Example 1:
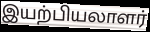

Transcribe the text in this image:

இயற்பியலாளர்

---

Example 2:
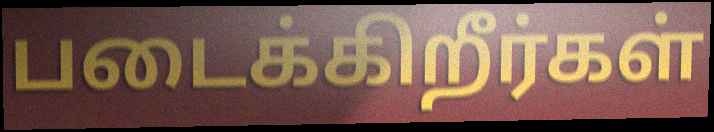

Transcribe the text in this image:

படைக்கிறீர்கள்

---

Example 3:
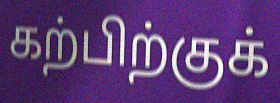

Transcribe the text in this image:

கற்பிற்குக்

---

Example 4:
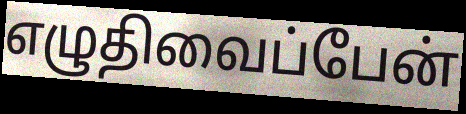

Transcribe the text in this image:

எழுதிவைப்பேன்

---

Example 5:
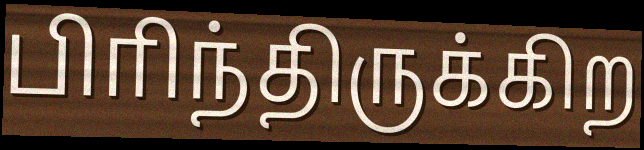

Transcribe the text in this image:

பிரிந்திருக்கிற